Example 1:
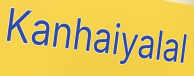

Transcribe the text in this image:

Kanhaiyalal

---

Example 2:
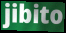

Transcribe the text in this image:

jibito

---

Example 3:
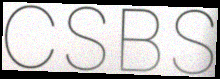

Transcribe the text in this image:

CSBS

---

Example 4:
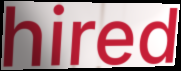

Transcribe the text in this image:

hired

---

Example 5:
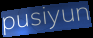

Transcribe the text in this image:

pusiyun